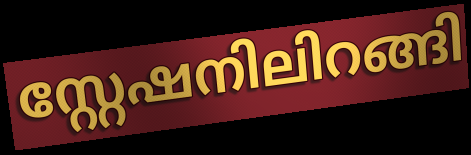
സ്റ്റേഷനിലിറങ്ങി